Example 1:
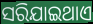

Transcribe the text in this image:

ସରିଯାଇଥାଏ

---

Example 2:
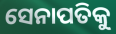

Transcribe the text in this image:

ସେନାପତିକୁ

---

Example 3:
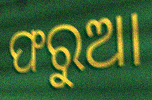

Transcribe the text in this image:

ଫରୁଆ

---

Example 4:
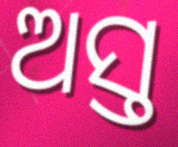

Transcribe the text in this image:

ଅସ୍ତ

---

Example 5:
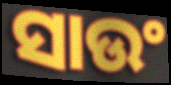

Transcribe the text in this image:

ସାଉଂ